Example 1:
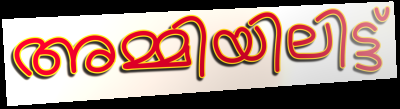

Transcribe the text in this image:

അമ്മിയിലിട്ട്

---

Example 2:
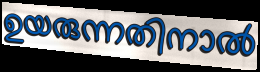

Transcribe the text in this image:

ഉയരുന്നതിനാൽ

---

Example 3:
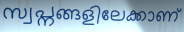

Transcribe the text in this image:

സ്വപ്നങ്ങളിലേക്കാണ്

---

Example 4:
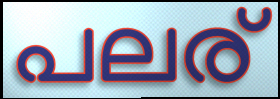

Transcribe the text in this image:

പലര്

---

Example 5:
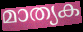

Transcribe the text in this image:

മാത്യക